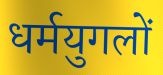
धर्मयुगलों